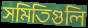
সমিতিগুলি